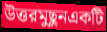
উত্তরমুছুনএকটি